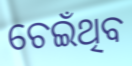
ଚେଇଁଥିବ